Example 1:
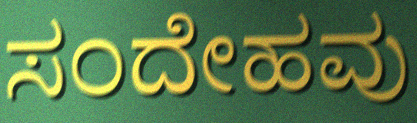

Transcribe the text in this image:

ಸಂದೇಹವು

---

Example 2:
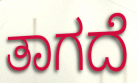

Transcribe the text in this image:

ತಾಗದೆ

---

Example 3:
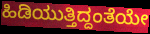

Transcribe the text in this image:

ಹಿಡಿಯುತ್ತಿದ್ದಂತೆಯೇ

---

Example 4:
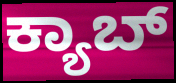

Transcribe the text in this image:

ಕ್ಯಾಬ್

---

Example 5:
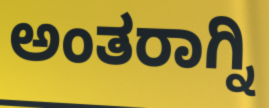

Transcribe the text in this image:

ಅಂತರಾಗ್ನಿ